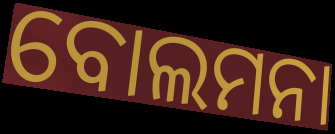
ବୋଲମନା